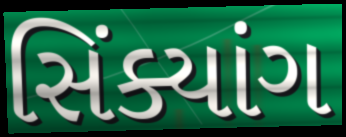
સિંક્યાંગ